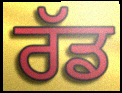
ਰੱਡ